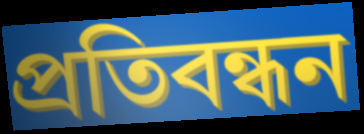
প্ৰতিবন্ধন